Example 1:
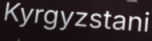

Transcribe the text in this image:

Kyrgyzstani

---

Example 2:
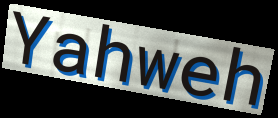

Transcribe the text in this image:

Yahweh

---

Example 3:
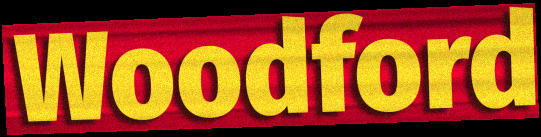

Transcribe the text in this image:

Woodford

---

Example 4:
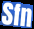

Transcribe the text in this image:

Sfn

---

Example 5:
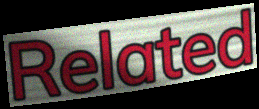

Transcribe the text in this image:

Related